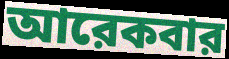
আরেকবার